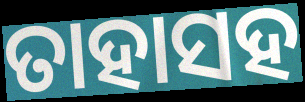
ତାହାସହ